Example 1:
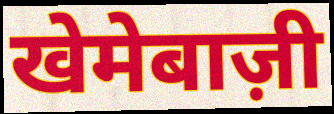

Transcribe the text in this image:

खेमेबाज़ी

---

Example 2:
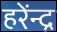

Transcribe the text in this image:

हरेंन्द्र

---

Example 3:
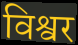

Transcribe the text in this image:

विश्वर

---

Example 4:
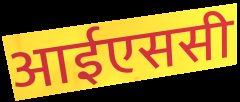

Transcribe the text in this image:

आईएससी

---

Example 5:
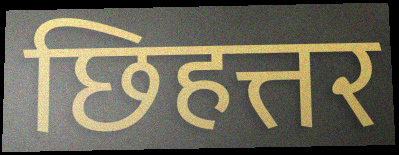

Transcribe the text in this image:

छिहत्तर